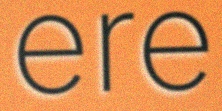
ere